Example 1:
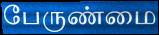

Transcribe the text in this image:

பேருண்மை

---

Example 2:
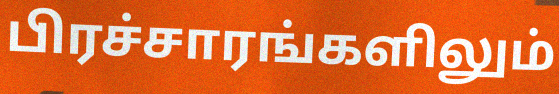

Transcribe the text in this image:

பிரச்சாரங்களிலும்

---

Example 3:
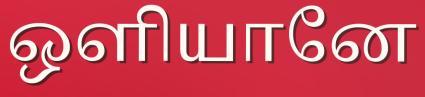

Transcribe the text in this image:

ஒளியானே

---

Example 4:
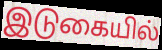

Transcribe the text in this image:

இடுகையில்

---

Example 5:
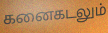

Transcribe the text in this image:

கனைகடலும்